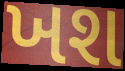
ખશ